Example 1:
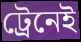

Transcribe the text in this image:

ট্রেনেই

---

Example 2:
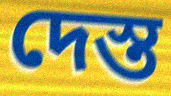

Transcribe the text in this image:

দেস্ত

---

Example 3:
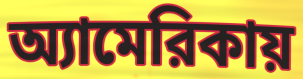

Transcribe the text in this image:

অ্যামেরিকায়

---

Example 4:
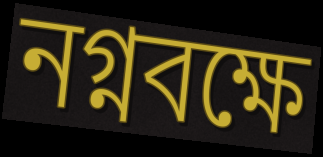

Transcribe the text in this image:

নগ্নবক্ষে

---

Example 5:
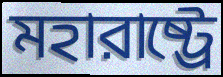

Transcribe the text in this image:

মহারাষ্ট্রে